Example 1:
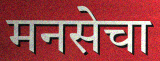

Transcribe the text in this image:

मनसेचा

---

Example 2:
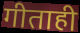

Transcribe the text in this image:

गीताही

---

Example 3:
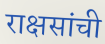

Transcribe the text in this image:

राक्षसांची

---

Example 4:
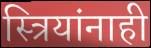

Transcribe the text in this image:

स्त्रियांनाही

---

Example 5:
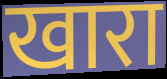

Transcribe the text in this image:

खारा